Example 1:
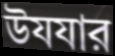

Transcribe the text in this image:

উযযার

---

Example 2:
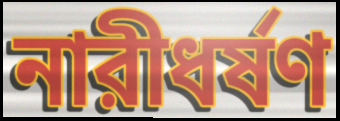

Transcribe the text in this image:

নারীধর্ষণ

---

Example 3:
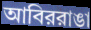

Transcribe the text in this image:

আবিররাঙা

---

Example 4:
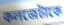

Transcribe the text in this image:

কলজেটাকে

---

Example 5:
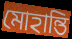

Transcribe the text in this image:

মোহান্তি